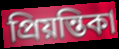
প্রিয়ন্তিকা